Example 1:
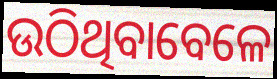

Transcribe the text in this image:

ଉଠିଥିବାବେଳେ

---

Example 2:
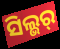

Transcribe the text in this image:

ସିଲ୍ଭର୍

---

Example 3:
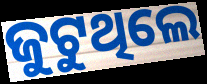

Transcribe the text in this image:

ଜୁଟୁଥିଲେ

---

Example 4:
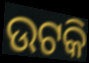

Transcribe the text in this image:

ଉଟକି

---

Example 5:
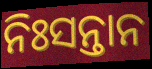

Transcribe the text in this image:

ନିଃସନ୍ତାନ